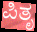
ಪಿತೃ